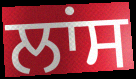
ਲਾਂਸ